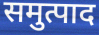
समुत्पाद